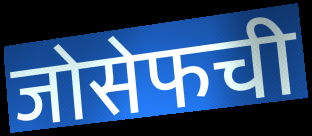
जोसेफची